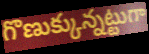
గొణుక్కున్నట్టుగా